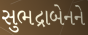
સુભદ્રાબેનને